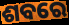
ଶବରେ